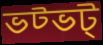
ভট্ভট্